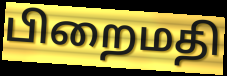
பிறைமதி